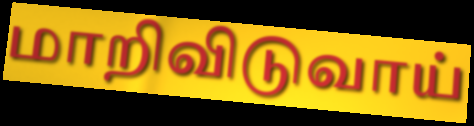
மாறிவிடுவாய்